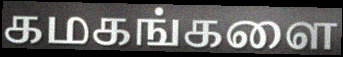
கமகங்களை